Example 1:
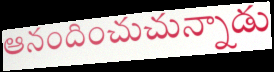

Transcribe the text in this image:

ఆనందించుచున్నాడు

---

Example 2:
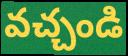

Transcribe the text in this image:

వచ్చండి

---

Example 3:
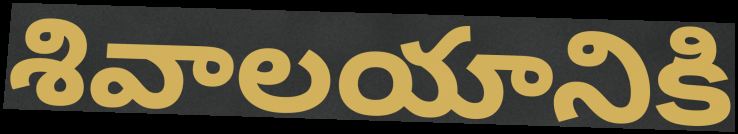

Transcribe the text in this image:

శివాలయానికి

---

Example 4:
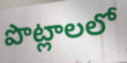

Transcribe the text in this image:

పొట్లాలలో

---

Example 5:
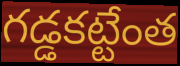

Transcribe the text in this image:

గడ్డకట్టేంత